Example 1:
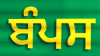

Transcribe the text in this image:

ਬੰਪਸ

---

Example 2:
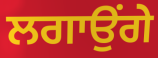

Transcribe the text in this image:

ਲਗਾਉਂਗੇ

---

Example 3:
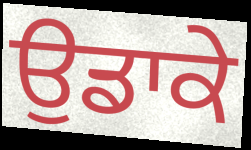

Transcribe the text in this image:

ਉਡਾਕੇ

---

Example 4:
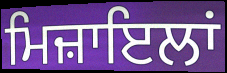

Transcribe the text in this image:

ਮਿਜ਼ਾਇਲਾਂ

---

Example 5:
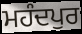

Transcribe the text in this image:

ਮਹੰਦਪੁਰ